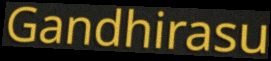
Gandhirasu